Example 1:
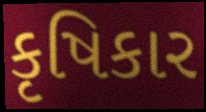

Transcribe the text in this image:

કૃષિકાર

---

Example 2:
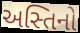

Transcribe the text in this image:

અસ્તિનો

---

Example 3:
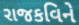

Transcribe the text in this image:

રાજકવિને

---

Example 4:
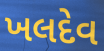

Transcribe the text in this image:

ખલદેવ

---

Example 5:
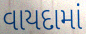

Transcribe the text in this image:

વાયદામાં